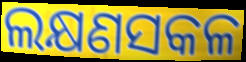
ଲକ୍ଷଣସକଳ